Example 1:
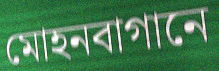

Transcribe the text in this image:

মোহনবাগানে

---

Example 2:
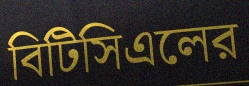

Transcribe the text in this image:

বিটিসিএলের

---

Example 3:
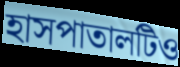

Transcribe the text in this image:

হাসপাতালটিও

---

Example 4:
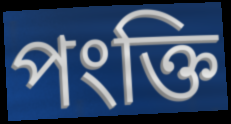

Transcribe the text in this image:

পংক্তি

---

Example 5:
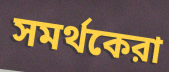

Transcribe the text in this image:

সমর্থকেরা